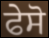
ਫੇਸੋ